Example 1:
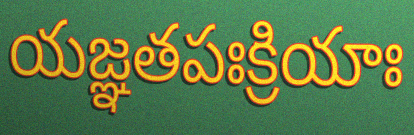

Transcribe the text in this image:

యజ్ఞతపఃక్రియాః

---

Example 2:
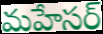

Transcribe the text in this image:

మహేసర్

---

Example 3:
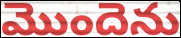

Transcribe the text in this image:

మొందెను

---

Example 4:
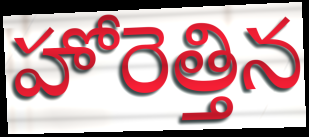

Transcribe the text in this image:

హోరెత్తిన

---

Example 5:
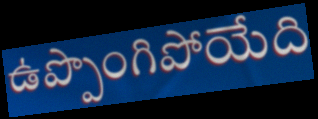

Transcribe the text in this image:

ఉప్పొంగిపోయేది